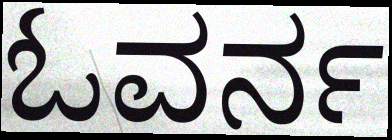
ಓವರ್ನ